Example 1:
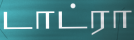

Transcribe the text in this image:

டாட்ரா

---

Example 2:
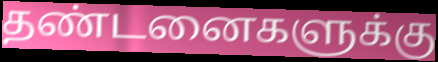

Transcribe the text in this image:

தண்டனைகளுக்கு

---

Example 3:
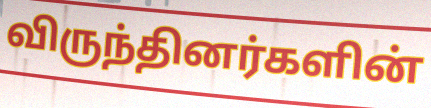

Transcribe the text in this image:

விருந்தினர்களின்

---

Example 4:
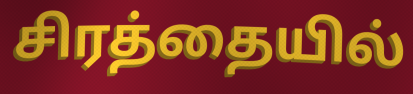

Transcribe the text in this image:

சிரத்தையில்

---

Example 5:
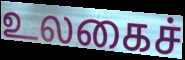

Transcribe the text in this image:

உலகைச்